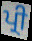
ਪ੍ਰੀ